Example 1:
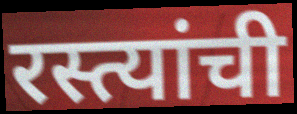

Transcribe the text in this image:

रस्त्यांची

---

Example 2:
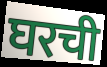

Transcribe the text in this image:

घरची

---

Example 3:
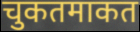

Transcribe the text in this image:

चुकतमाकत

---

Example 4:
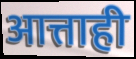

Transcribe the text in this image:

आत्ताही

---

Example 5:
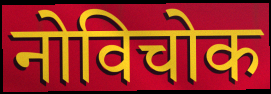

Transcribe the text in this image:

नोविचोक